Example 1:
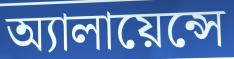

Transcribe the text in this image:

অ্যালায়েন্সে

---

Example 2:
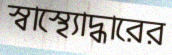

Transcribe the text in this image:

স্বাস্থ্যোদ্ধারের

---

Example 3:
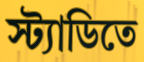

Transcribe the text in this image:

স্ট্যাডিতে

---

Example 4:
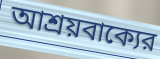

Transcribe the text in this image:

আশ্রয়বাক্যের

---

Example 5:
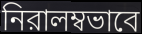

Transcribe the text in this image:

নিরালম্বভাবে